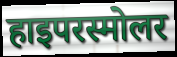
हाइपरस्मोलर